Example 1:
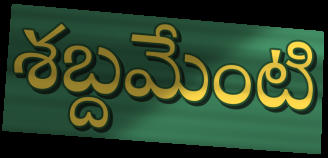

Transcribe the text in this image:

శబ్దమేంటి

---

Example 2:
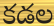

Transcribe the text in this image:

కడల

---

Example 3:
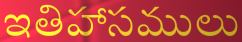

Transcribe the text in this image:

ఇతిహాసములు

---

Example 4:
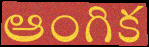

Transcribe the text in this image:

ఆంగిక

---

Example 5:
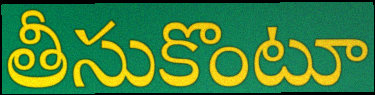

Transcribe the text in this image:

తీసుకొంటూ